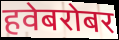
हवेबरोबर